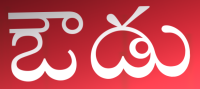
ఔడు